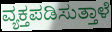
ವ್ಯಕ್ತಪಡಿಸುತ್ತಾಳೆ